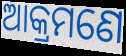
ଆକ୍ରମଣେ